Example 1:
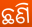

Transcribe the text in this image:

ଛଣି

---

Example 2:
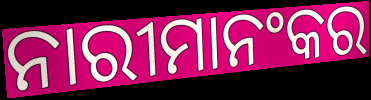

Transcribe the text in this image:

ନାରୀମାନଂକର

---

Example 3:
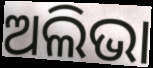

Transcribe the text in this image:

ଅଲିଭା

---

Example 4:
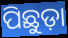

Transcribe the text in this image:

ପିଛୁଡ଼ା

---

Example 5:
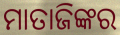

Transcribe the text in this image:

ମାତାଜିଙ୍କର